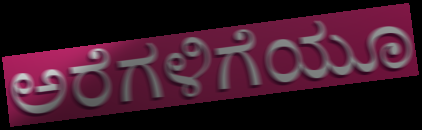
ಅರೆಗಳಿಗೆಯೂ